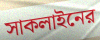
সাকলাইনের